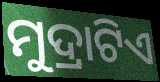
ମୁଦ୍ରାଟିଏ